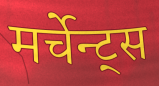
मर्चेन्ट्स